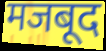
मजबूद